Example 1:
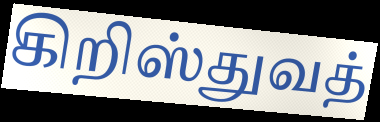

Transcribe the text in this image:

கிறிஸ்துவத்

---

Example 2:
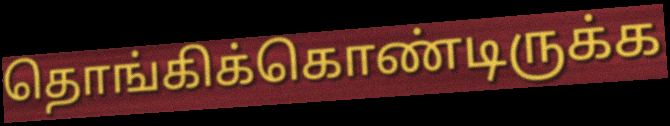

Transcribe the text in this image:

தொங்கிக்கொண்டிருக்க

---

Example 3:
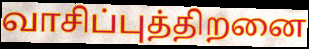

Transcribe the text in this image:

வாசிப்புத்திறனை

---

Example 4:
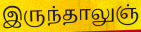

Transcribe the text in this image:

இருந்தாலுஞ்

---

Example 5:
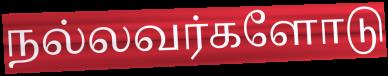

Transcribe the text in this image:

நல்லவர்களோடு